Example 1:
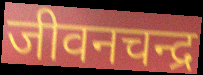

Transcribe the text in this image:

जीवनचन्द्र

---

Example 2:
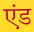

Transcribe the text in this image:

एंड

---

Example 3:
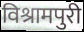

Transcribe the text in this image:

विश्रामपुरी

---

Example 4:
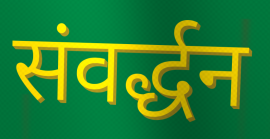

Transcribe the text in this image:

संवर्द्धन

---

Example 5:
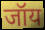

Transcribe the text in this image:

जॉय